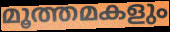
മൂത്തമകളും